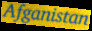
Afganistan